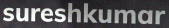
sureshkumar